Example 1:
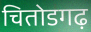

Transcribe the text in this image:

चितोडगढ़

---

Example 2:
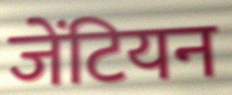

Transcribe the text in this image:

जेंटियन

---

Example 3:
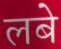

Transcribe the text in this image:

लबे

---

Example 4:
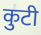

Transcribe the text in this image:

कुटी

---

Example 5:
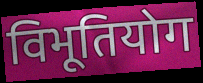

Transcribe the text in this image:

विभूतियोग